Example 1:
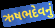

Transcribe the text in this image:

ઋષભદેવનું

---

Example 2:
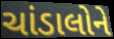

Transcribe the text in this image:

ચાંડાલોને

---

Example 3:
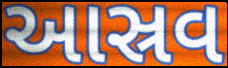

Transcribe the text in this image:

આસ્રવ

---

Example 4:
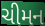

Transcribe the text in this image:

ચીમન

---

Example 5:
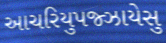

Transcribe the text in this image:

આચરિયુપજ્ઝાયેસુ